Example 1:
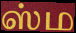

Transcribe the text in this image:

ஸ்ம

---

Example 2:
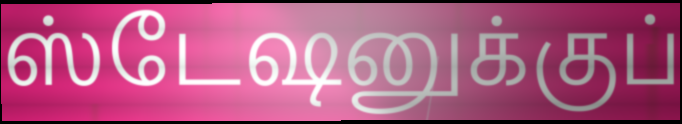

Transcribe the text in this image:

ஸ்டேஷனுக்குப்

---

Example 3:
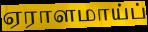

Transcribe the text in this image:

ஏராளமாய்ப்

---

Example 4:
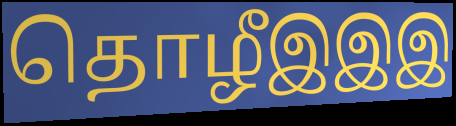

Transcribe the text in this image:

தொழீஇஇஇ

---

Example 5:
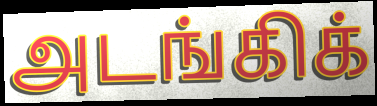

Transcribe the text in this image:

அடங்கிக்